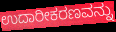
ಉದಾರೀಕರಣವನ್ನು